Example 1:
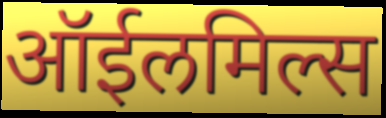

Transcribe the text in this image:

ऑईलमिल्स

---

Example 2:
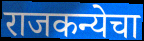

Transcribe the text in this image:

राजकन्येचा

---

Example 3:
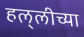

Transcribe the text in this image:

हल्लीच्या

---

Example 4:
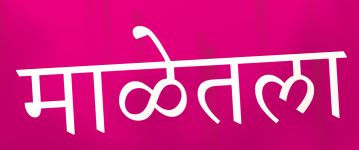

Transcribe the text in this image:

माळेतला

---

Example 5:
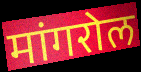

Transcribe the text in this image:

मांगरोल